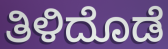
ತಿಳಿದೊಡೆ